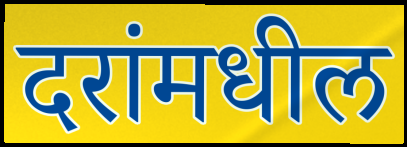
दरांमधील